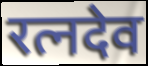
रत्नदेव